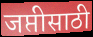
जप्तीसाठी